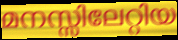
മനസ്സിലേറ്റിയ